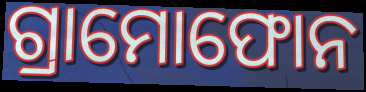
ଗ୍ରାମୋଫୋନ